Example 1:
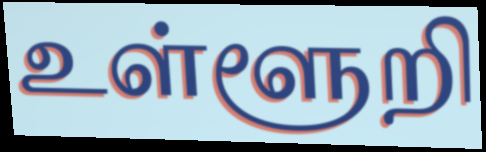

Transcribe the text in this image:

உள்ளூறி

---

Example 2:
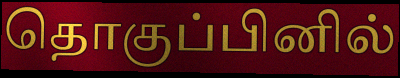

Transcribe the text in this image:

தொகுப்பினில்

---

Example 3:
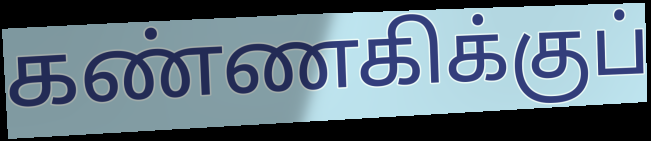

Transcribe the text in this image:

கண்ணகிக்குப்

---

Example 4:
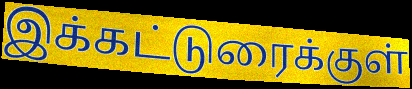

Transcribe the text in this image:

இக்கட்டுரைக்குள்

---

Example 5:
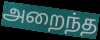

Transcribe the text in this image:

அறைந்த